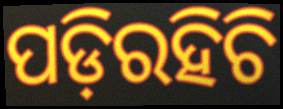
ପଡ଼ିରହିଚି